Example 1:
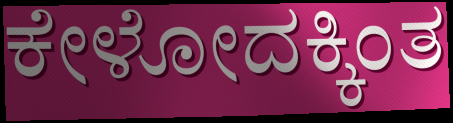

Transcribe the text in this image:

ಕೇಳೋದಕ್ಕಿಂತ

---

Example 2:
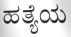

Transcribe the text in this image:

ಹತ್ಯೆಯ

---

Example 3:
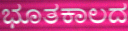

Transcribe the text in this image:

ಭೂತಕಾಲದ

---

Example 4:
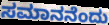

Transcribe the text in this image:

ಸಮಾನನೆಂದು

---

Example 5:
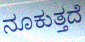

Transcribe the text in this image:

ನೂಕುತ್ತದೆ